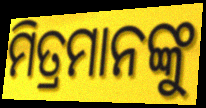
ମିତ୍ରମାନଙ୍କୁ